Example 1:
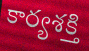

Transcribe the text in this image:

కార్యశక్తి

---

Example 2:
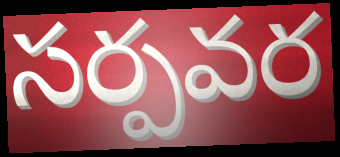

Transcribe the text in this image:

సర్పవర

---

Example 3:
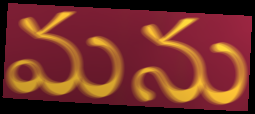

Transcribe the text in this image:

మను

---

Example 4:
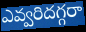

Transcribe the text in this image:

ఎవ్వరిదగ్గరా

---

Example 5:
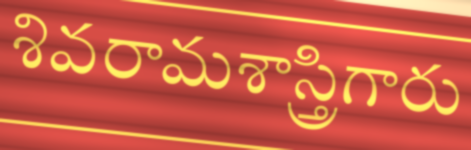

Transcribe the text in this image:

శివరామశాస్త్రిగారు